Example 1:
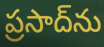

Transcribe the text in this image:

ప్రసాద్‌ను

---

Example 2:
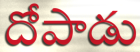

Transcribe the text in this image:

దోపాడు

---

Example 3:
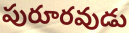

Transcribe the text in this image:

పురూరవుడు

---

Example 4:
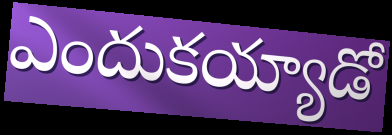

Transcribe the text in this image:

ఎందుకయ్యాడో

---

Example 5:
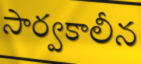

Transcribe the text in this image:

సార్వకాలీన